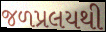
જળપ્રલયથી